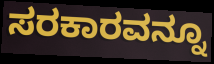
ಸರಕಾರವನ್ನೂ